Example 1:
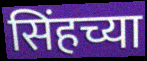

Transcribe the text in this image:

सिंहच्या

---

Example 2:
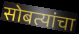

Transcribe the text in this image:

सोबत्यांचा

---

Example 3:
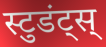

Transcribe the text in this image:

स्टुडंट्स्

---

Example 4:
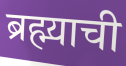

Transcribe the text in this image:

ब्रह्म्याची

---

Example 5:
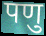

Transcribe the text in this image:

पणु